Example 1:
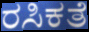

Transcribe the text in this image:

ರಸಿಕತೆ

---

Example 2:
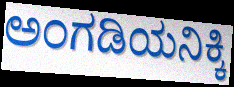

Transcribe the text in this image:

ಅಂಗಡಿಯನಿಕ್ಕಿ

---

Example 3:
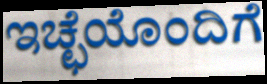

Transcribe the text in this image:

ಇಚ್ಛೆಯೊಂದಿಗೆ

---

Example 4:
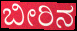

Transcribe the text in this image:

ಬೀರಿನ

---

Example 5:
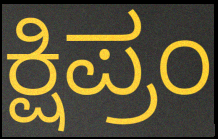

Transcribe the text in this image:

ಕ್ಷಿಪ್ರಂ